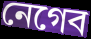
নেগেব